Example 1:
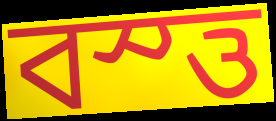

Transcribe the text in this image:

বস্ত্ত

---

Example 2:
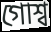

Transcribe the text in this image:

গোশ্ব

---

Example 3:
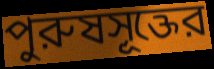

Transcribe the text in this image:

পুরুষসূক্তের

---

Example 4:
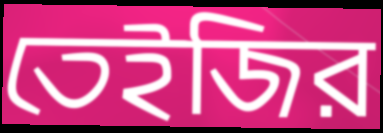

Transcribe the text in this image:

তেইজির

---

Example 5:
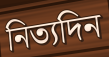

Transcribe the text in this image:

নিত্যদিন